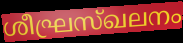
ശീഘ്രസ്ഖലനം